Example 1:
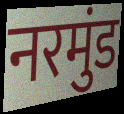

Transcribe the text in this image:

नरमुंड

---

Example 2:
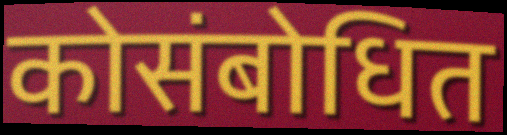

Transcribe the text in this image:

कोसंबोधित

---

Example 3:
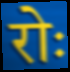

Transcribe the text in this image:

रोः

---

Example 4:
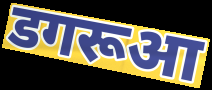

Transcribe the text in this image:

डगरूआ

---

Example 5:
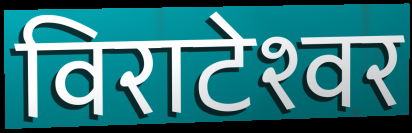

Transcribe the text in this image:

विराटेश्वर